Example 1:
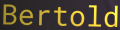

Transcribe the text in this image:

Bertold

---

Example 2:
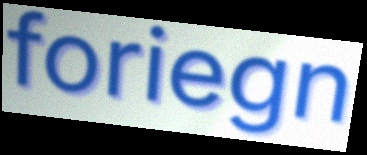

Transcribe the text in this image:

foriegn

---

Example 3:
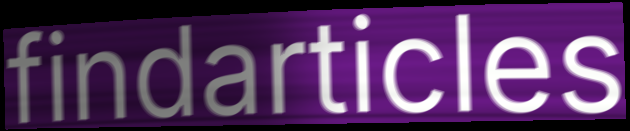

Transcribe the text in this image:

findarticles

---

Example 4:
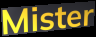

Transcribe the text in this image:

Mister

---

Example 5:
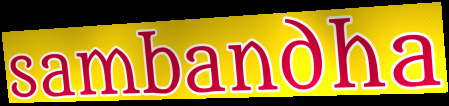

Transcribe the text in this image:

sambandha